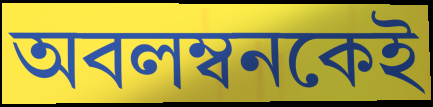
অবলম্বনকেই